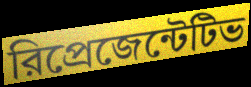
রিপ্রেজেন্টেটিভ